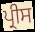
ਪ੍ਰੀਸ